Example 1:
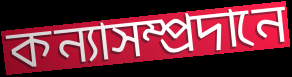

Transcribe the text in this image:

কন্যাসম্প্রদানে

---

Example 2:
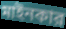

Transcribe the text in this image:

মাইনকার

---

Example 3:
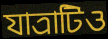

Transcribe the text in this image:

যাত্রাটিও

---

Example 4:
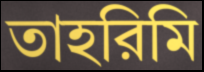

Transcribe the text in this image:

তাহরিমি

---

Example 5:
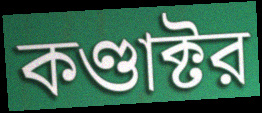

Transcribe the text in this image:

কণ্ডাক্টর